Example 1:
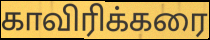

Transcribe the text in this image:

காவிரிக்கரை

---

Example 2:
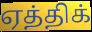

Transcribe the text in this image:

ஏத்திக்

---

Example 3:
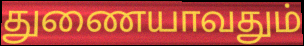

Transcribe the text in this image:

துணையாவதும்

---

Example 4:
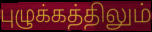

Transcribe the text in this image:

புழுக்கத்திலும்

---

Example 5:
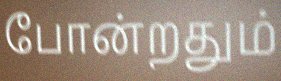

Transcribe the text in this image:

போன்றதும்